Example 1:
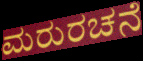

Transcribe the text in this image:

ಮರುರಚನೆ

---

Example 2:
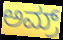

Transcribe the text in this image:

ಅಮ್ರ್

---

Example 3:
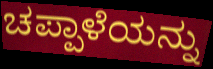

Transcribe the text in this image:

ಚಪ್ಪಾಳೆಯನ್ನು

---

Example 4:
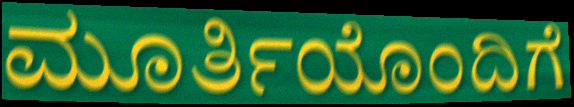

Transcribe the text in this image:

ಮೂರ್ತಿಯೊಂದಿಗೆ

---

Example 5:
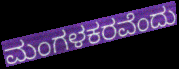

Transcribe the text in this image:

ಮಂಗಳಕರವೆಂದು